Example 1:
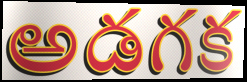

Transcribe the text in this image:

అడగక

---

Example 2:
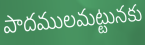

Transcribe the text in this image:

పాదములమట్టునకు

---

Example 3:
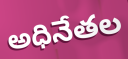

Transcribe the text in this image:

అధినేతల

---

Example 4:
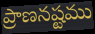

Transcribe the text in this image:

ప్రాణనష్టము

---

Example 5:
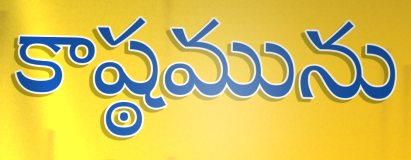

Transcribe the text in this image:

కాష్ఠమును